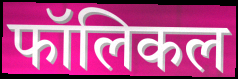
फॉलिकल